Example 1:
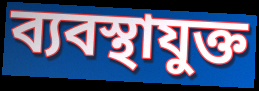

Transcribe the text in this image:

ব্যবস্থাযুক্ত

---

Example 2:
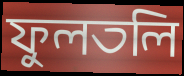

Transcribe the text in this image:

ফুলতলি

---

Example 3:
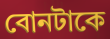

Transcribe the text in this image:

বোনটাকে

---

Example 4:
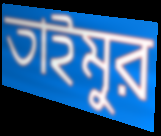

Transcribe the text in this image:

তাইমুর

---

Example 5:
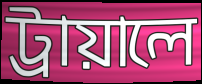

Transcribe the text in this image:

ট্রায়ালে